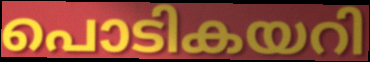
പൊടികയറി